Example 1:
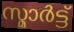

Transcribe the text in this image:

സ്മാർട്ട്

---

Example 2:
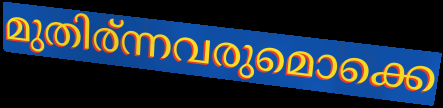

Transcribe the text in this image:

മുതിര്ന്നവരുമൊക്കെ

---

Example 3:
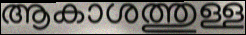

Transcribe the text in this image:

ആകാശത്തുള്ള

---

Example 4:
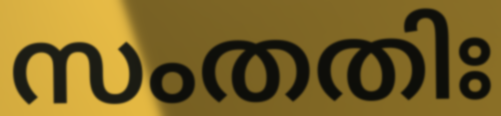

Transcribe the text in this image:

സംതതിഃ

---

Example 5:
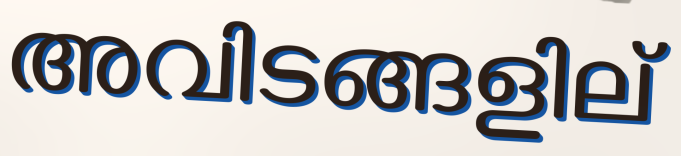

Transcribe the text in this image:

അവിടങ്ങളില്